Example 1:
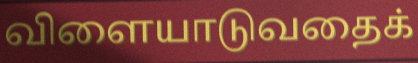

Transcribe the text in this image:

விளையாடுவதைக்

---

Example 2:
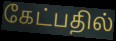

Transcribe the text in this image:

கேட்பதில்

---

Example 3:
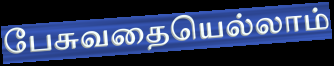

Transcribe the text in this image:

பேசுவதையெல்லாம்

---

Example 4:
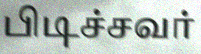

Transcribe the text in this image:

பிடிச்சவர்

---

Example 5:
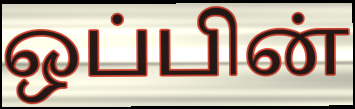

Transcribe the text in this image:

ஒப்பின்